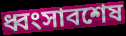
ধ্বংসাবশেষ